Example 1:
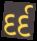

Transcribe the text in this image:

દર્દ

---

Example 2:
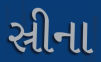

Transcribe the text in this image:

સ્રીના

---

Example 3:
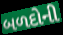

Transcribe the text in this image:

બળદોની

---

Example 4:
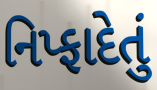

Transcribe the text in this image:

નિપ્ફાદેતું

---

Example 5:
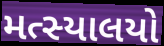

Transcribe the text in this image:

મત્સ્યાલયો